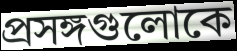
প্রসঙ্গগুলোকে